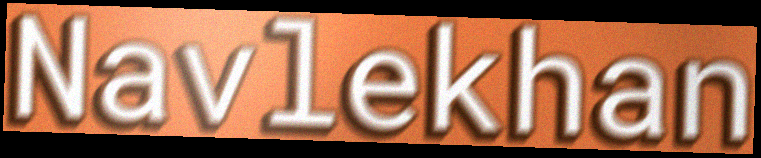
Navlekhan